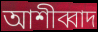
আশীব্বাদ